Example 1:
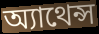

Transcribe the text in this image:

অ্যাথেন্স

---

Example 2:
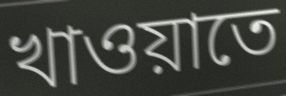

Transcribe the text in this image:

খাওয়াতে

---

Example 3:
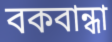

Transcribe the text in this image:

বকবান্ধা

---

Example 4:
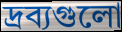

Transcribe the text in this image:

দ্রব্যগুলো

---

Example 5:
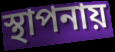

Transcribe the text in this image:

স্থাপনায়